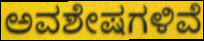
ಅವಶೇಷಗಳಿವೆ